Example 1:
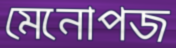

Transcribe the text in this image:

মেনোপজ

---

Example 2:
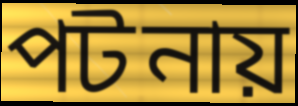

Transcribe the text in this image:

পটনায়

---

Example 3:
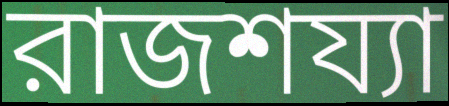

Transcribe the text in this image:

রাজশয্যা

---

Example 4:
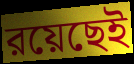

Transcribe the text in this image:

রয়েছেই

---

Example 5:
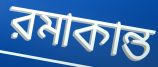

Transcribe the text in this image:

রমাকান্ত